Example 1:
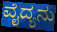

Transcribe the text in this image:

ವೈದ್ಯನು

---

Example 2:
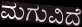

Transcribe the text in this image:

ಮಗುವಿದೆ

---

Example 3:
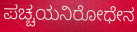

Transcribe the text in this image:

ಪಚ್ಚಯನಿರೋಧೇನ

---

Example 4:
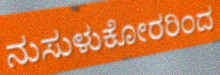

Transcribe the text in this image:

ನುಸುಳುಕೋರರಿಂದ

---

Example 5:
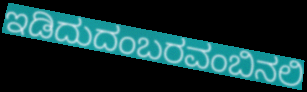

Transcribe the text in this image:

ಇಡಿದುದಂಬರವಂಬಿನಲಿ